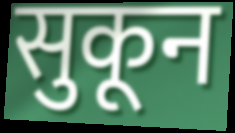
सुकून